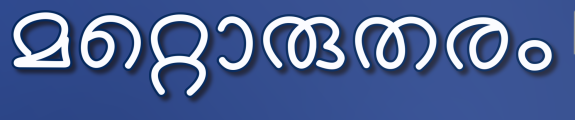
മറ്റൊരുതരം